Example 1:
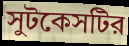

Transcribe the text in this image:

সুটকেসটির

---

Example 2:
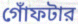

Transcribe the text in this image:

গোঁফটার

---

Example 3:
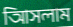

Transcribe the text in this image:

আিসলাম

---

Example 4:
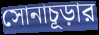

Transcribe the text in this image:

সোনাচূড়ার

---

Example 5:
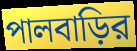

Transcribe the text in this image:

পালবাড়ির